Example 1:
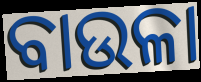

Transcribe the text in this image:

ବାଉଳା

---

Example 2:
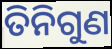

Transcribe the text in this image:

ତିନିଗୁଣ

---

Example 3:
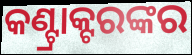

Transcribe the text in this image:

କଣ୍ଟ୍ରାକ୍ଟରଙ୍କର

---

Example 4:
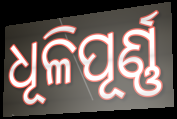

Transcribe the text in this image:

ଧୂଳିପୂର୍ଣ୍ଣ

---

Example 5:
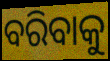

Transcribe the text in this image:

ବରିବାକୁ